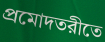
প্রমোদতরীতে